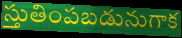
స్తుతింపబడునుగాక